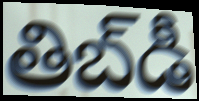
తిబ్‌డీ